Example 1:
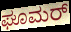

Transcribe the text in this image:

ಘೂಮರ್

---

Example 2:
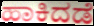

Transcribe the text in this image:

ಹಾಕಿದಡೆ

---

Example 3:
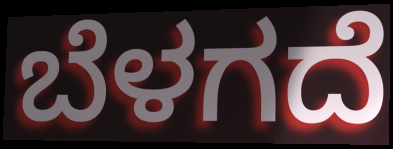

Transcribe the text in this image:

ಬೆಳಗದೆ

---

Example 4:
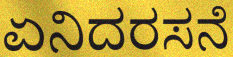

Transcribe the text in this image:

ಏನಿದರಸನೆ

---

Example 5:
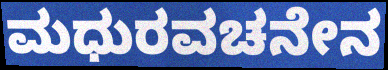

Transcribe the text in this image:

ಮಧುರವಚನೇನ